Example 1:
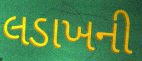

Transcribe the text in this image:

લડાખની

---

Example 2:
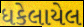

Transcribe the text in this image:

ધકેલાયેલ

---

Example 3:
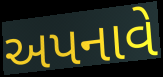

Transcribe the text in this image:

અપનાવે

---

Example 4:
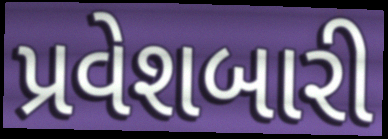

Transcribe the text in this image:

પ્રવેશબારી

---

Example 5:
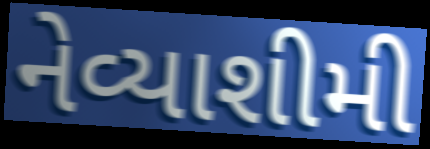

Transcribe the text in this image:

નેવ્યાશીમી